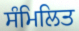
ਸੰਮਿਲਿਤ